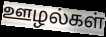
ஊழல்கள்